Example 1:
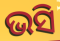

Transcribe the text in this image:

ଭସି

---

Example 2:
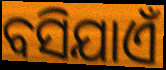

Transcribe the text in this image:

ବସିଯାଏଁ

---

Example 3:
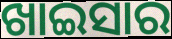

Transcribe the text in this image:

ଖାଇସାର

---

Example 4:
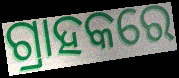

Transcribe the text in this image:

ଗ୍ରାହକରେ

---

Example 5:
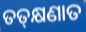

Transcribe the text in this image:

ତତ୍‍କ୍ଷଣାତ